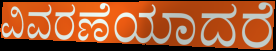
ವಿವರಣೆಯಾದರೆ